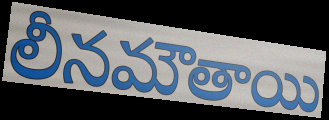
లీనమౌతాయి